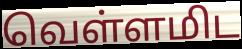
வெள்ளமிட